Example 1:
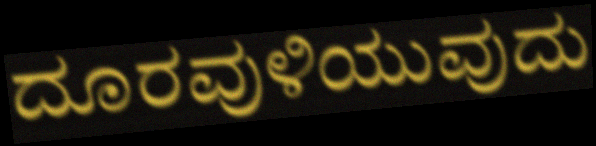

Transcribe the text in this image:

ದೂರವುಳಿಯುವುದು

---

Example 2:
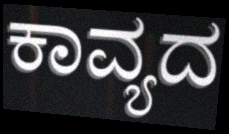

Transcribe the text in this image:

ಕಾವ್ಯದ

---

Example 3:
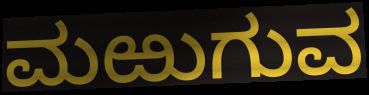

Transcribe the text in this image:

ಮಱುಗುವ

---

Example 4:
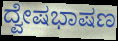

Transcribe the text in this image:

ದ್ವೇಷಭಾಷಣ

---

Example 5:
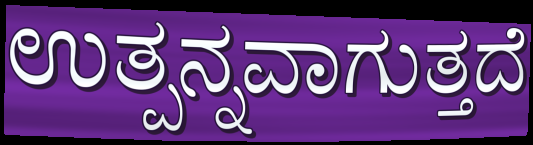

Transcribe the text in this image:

ಉತ್ಪನ್ನವಾಗುತ್ತದೆ